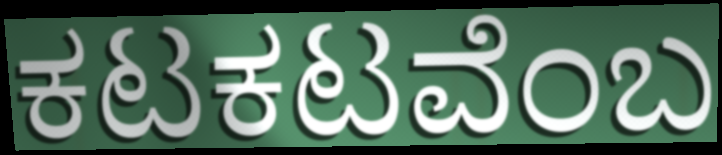
ಕಟಕಟವೆಂಬ